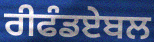
ਰੀਫੰਡਏਬਲ